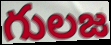
గులజ